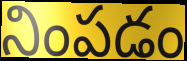
నింపడం